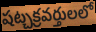
షట్చక్రవర్తులలో